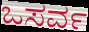
ಒಸರ್ವ